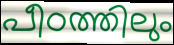
പീഠത്തിലും